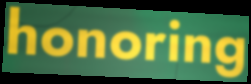
honoring